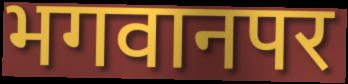
भगवानपर